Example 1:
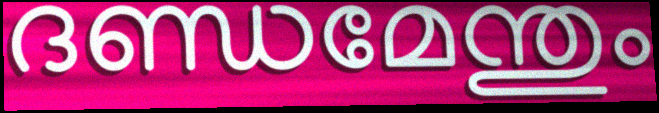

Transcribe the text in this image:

ദണ്ഡമേന്തും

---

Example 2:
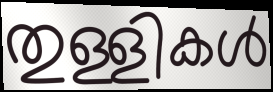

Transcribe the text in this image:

തുള്ളികൾ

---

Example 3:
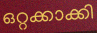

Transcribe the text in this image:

ഒറ്റക്കാക്കി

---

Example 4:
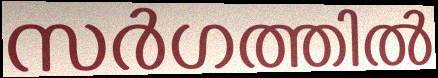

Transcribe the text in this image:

സർഗത്തിൽ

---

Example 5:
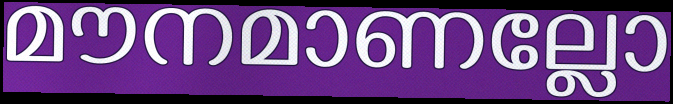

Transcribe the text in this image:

മൗനമാണല്ലോ